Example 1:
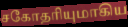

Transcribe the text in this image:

சகோதரியுமாகிய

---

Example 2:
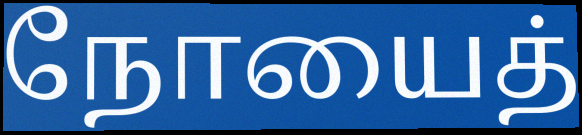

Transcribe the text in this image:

நோயைத்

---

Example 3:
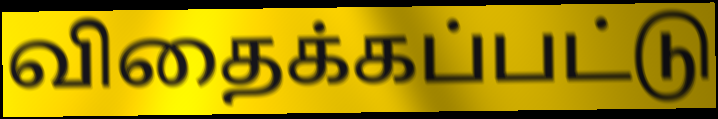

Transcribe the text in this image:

விதைக்கப்பட்டு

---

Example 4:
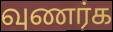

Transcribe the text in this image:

வுணர்க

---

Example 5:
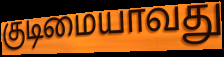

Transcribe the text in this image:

குடிமையாவது